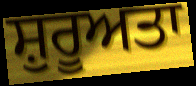
ਸ਼ੁਰੂਅਤਾ